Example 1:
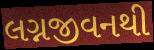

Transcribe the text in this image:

લગ્નજીવનથી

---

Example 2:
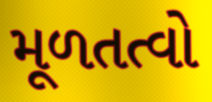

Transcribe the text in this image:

મૂળતત્વો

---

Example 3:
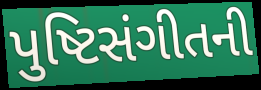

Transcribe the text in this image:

પુષ્ટિસંગીતની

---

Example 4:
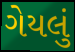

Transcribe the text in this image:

ગેયલું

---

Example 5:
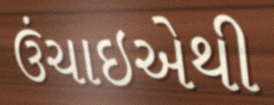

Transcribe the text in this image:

ઉંચાઇએથી